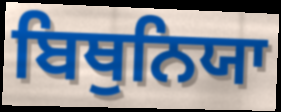
ਬਿਥੁਨਿਯਾ